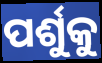
ପର୍ଶୁକୁ